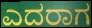
ಎದರಾಗ